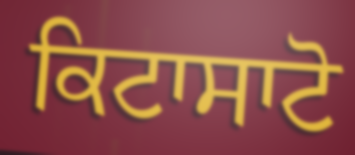
ਕਿਟਾਸਾਟੋ